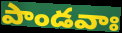
పాండవాః